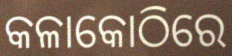
କଳାକୋଠିରେ